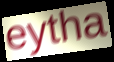
eytha